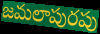
జమలాపురపు